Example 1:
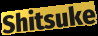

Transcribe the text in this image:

Shitsuke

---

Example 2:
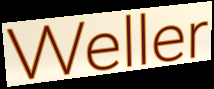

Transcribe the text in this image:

Weller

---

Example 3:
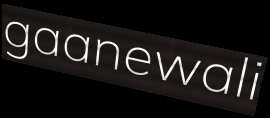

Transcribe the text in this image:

gaanewali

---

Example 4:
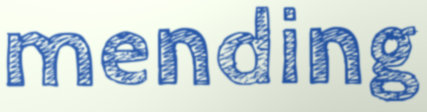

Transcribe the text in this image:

mending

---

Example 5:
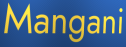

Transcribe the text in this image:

Mangani